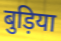
बुड़िया